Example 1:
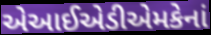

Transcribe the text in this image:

એઆઈએડીએમકેનાં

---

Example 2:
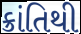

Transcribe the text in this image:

ક્રાંતિથી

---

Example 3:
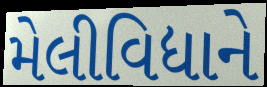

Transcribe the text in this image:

મેલીવિદ્યાને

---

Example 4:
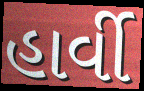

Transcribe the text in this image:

હાર્વી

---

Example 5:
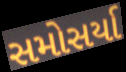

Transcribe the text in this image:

સમોસર્યા